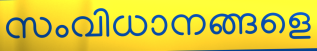
സംവിധാനങ്ങളെ